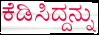
ಕೆಡಿಸಿದ್ದನ್ನು